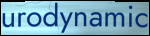
urodynamic